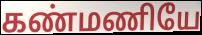
கண்மணியே